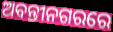
ଅବନ୍ତୀନଗରରେ